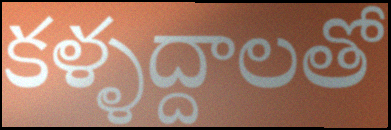
కళ్ళద్దాలతో